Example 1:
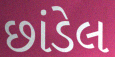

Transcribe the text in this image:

છાંડેલ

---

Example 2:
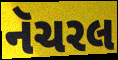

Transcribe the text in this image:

નૅચરલ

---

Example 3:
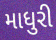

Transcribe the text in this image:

માધુરી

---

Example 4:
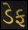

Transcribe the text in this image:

ડેફ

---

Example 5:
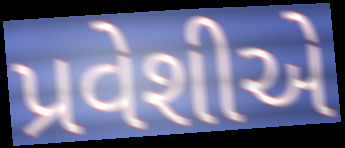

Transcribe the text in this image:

પ્રવેશીએ